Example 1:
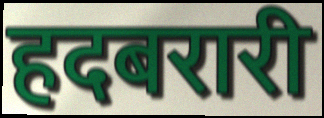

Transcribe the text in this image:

हदबरारी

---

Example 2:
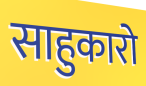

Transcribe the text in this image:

साहुकारो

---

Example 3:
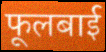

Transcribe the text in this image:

फूलबाई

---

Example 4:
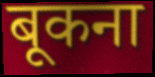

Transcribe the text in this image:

बूकना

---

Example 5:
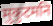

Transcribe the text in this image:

मुकुटमनि